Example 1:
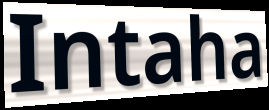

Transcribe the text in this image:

Intaha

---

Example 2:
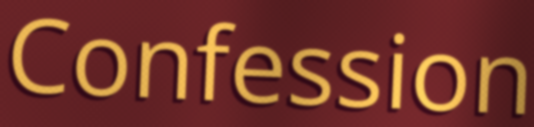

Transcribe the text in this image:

Confession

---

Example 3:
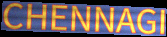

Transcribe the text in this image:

CHENNAGI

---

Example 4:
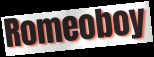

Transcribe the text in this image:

Romeoboy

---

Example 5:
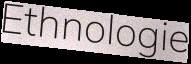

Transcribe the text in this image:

Ethnologie